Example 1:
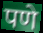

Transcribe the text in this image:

पणे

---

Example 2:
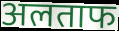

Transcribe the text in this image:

अलताफ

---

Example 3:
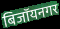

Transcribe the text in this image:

बिजॉयनगर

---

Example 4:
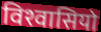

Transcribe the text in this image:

विश्वासियो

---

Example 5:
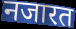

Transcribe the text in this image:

नजारत